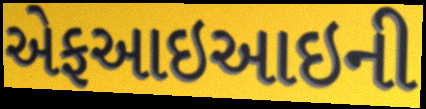
એફઆઇઆઇની